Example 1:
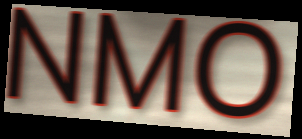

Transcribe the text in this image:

NMO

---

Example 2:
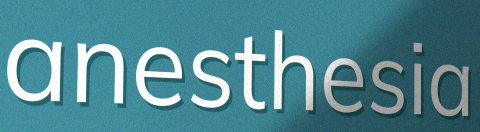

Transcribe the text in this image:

anesthesia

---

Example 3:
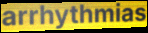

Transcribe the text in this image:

arrhythmias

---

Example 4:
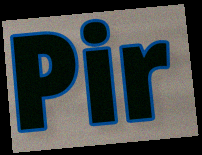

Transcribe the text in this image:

Pir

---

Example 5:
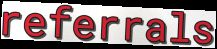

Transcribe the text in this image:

referrals